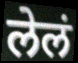
लेलं